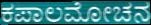
ಕಪಾಲಮೋಚನ